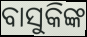
ବାସୁକିଙ୍କ